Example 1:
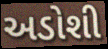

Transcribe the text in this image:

અડોશી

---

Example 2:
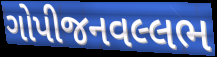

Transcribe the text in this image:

ગોપીજનવલ્લભ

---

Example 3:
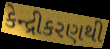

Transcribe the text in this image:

કેન્દ્રીકરણથી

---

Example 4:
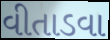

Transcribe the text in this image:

વીતાડવા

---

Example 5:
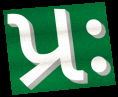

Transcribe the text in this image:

પ્રઃ